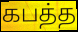
கபத்த